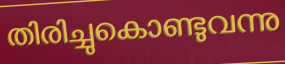
തിരിച്ചുകൊണ്ടുവന്നു